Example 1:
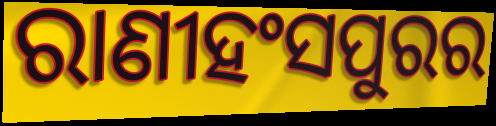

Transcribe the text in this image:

ରାଣୀହଂସପୁରର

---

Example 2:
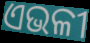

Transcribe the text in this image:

ଏଭଳୀ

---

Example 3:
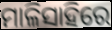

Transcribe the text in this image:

ମାଳିସାହିରେ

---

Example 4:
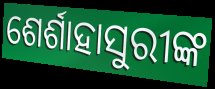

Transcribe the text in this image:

ଶେର୍ଶାହାସୁରୀଙ୍କ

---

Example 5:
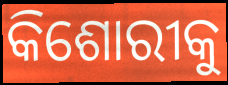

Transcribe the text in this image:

କିଶୋରୀକୁ